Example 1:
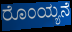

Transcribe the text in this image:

ರೊಂಯ್ಯನೆ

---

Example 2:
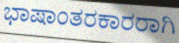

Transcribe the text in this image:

ಭಾಷಾಂತರಕಾರರಾಗಿ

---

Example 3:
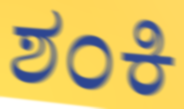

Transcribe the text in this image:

ಶಂಕಿ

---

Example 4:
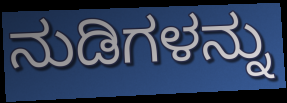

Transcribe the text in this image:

ನುಡಿಗಳನ್ನು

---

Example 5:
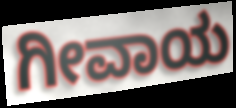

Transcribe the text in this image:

ಗೀವಾಯ